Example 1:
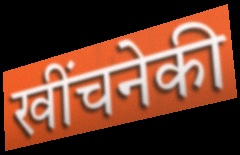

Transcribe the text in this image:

खींचनेकी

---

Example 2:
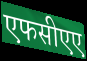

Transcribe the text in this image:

एफसीएए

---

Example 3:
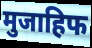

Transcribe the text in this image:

मुजाहिफ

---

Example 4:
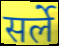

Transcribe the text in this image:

सर्ले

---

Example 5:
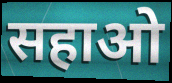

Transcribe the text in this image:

सहाओ